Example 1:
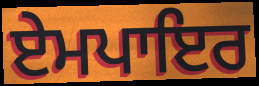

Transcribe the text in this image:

ਏਮਪਾਇਰ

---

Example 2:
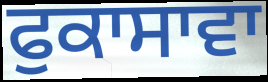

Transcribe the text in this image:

ਫੁਕਾਸਾਵਾ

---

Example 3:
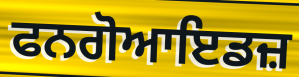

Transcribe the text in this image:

ਫਨਗੋਆਇਡਜ਼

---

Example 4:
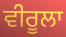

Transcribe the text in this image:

ਵੀਰੂਲਾ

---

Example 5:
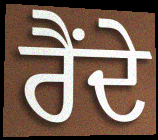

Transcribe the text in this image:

ਰੈਂਦੇ